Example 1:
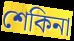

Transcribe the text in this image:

শেকিনা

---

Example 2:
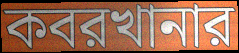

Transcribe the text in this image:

কবরখানার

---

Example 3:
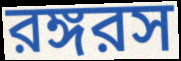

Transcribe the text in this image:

রঙ্গরস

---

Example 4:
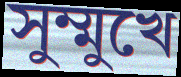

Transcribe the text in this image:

সুম্মুখে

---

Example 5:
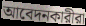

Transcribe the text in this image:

আবেদনকারীরা